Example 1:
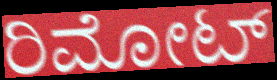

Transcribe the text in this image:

ರಿಮೋಟ್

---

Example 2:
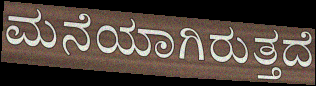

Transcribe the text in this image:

ಮನೆಯಾಗಿರುತ್ತದೆ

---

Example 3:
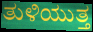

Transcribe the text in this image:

ತುಳಿಯುತ್ತ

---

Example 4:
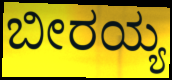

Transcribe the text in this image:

ಬೀರಯ್ಯ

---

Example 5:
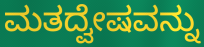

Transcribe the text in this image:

ಮತದ್ವೇಷವನ್ನು